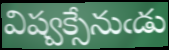
విష్వక్సేనుఁడు